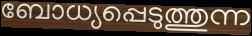
ബോധ്യപ്പെടുത്തുന്ന